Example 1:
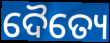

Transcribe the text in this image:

ଦୈତ୍ୟେ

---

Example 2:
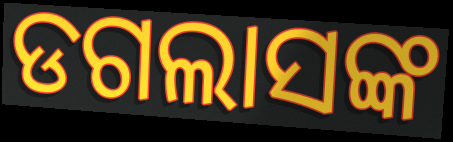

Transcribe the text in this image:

ଡଗଲାସଙ୍କ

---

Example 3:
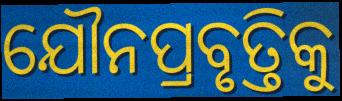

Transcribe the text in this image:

ଯୌନପ୍ରବୃତ୍ତିକୁ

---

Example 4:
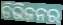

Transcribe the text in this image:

ଡିଭିଜନର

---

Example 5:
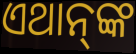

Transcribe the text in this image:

ଏଥାନ୍‍ଙ୍କ